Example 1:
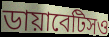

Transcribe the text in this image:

ডায়াবেটিসও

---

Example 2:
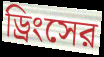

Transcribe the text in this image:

ড্রিংসের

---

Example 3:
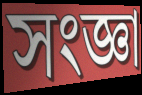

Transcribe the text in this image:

সংজ্ঞা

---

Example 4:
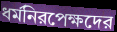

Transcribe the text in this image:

ধর্মনিরপেক্ষদের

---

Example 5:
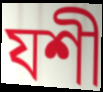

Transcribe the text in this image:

যশী